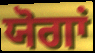
ਯੋਗਾਂ